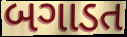
બગાડત